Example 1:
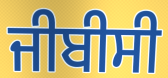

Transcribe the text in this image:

ਜੀਬੀਸੀ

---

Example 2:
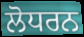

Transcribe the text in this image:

ਲੋਧਰਨ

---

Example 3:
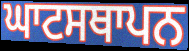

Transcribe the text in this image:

ਘਾਟਸਥਾਪਨ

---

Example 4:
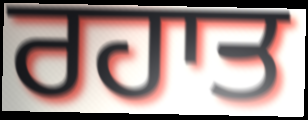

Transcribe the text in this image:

ਰਹਾਤ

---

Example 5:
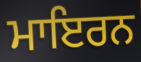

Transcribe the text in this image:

ਮਾਇਰਨ